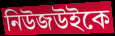
নিউজউইকে